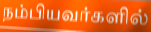
நம்பியவர்களில்